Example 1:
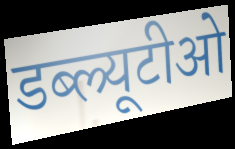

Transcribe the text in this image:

डब्ल्यूटीओ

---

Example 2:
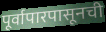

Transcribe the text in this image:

पूर्वापारपासूनची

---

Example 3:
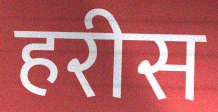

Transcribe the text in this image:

हरीस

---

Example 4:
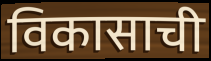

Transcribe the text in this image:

विकासाची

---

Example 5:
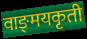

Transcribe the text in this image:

वाङ्‌मयकृती